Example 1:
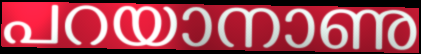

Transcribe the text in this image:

പറയാനാണു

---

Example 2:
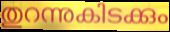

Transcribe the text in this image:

തുറന്നുകിടക്കും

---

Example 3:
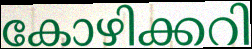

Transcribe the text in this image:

കോഴിക്കറി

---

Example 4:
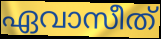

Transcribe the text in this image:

ഏവാസീത്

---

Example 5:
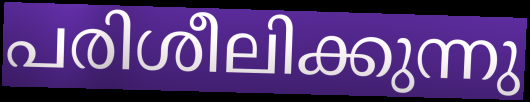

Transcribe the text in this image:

പരിശീലിക്കുന്നു